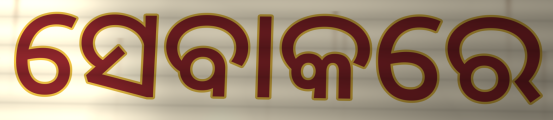
ସେବାକରେ